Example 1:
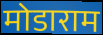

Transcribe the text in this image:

मोडाराम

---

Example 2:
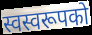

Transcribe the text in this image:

स्वस्वरूपको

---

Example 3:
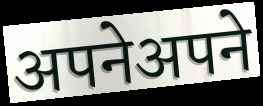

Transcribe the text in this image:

अपनेअपने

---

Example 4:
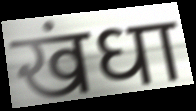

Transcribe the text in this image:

खंधा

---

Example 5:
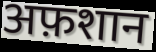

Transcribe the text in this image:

अफ़शान